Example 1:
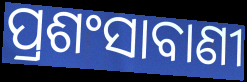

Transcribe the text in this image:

ପ୍ରଶଂସାବାଣୀ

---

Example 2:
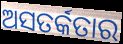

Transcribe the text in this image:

ଅସତର୍କତାର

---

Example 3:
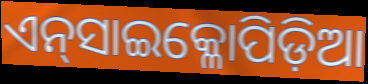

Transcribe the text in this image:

ଏନ୍‌ସାଇକ୍ଳୋପିଡ଼ିଆ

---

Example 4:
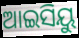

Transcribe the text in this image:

ଆଇସିୟୁ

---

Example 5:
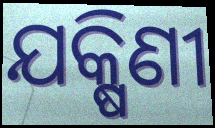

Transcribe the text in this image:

ଯକ୍ଷିଣୀ